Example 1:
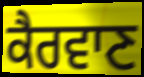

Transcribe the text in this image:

ਕੈਰਵਾਣ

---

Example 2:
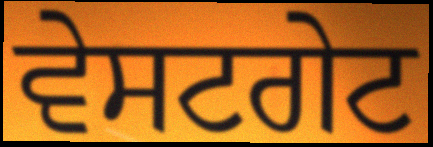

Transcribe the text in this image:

ਵੇਸਟਗੇਟ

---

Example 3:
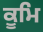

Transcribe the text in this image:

ਕੂਮਿ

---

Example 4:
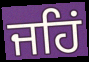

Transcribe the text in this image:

ਜਹਿਂ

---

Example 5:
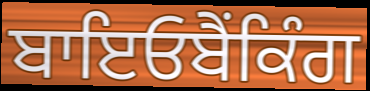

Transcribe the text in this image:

ਬਾਇਓਬੈਂਕਿੰਗ